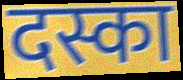
दस्का